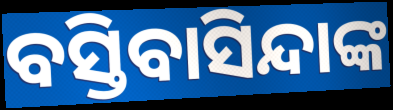
ବସ୍ତିବାସିନ୍ଦାଙ୍କ